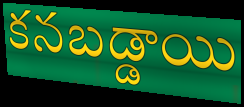
కనబడ్డాయి